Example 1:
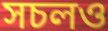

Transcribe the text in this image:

সচলও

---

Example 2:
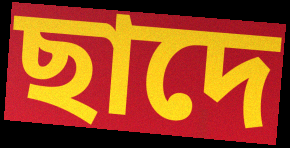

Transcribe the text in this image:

ছাদে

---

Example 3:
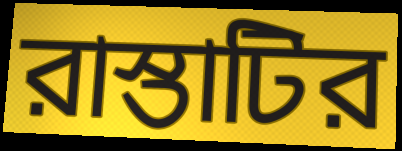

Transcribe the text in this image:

রাস্তাটির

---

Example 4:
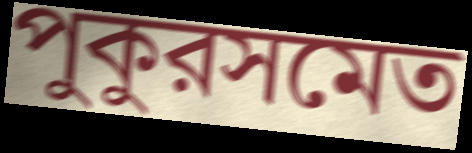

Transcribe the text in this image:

পুকুরসমেত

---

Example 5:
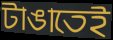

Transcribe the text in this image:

টাঙাতেই